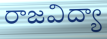
రాజవిద్యా